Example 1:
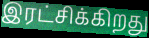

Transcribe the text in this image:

இரட்சிக்கிறது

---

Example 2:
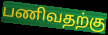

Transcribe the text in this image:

பணிவதற்கு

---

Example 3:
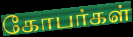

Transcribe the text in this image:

கோபர்கள்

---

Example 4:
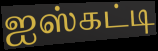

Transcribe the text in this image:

ஐஸ்கட்டி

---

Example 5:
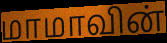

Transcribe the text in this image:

மாமாவின்